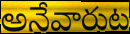
అనేవారుట